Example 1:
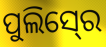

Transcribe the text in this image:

ପୁଲିସ୍‍ରେ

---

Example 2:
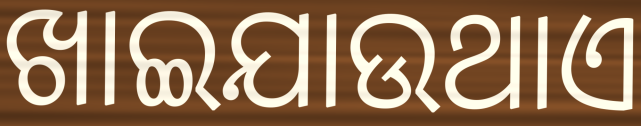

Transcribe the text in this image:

ଖାଇଯାଉଥାଏ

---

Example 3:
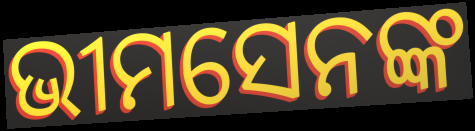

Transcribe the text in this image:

ଭୀମସେନଙ୍କ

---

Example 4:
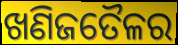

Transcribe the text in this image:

ଖଣିଜତୈଳର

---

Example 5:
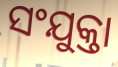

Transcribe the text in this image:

ସଂଯୁକ୍ତା